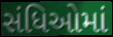
સંધિઓમાં